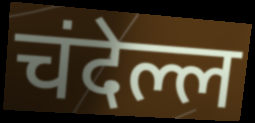
चंदेल्ल